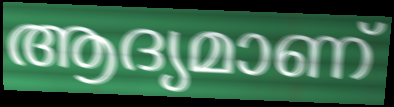
ആദ്യമാണ്